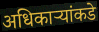
अधिकाऱ्यांकडे